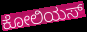
ಕೋಲಿಯಸ್